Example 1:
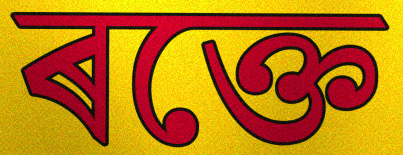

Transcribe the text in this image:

ৰক্তে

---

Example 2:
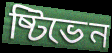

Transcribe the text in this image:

ষ্টিভেন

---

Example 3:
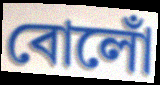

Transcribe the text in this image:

বোলোঁ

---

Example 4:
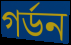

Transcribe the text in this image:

গৰ্ডন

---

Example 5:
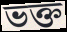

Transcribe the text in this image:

ভক্ত